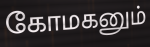
கோமகனும்